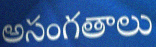
అసంగతాలు